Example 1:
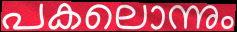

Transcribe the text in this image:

പകലൊന്നും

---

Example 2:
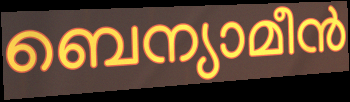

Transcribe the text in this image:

ബെന്യാമീൻ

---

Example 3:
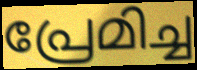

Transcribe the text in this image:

പ്രേമിച്ച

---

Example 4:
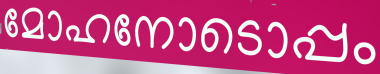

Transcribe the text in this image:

മോഹനോടൊപ്പം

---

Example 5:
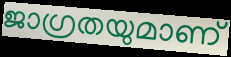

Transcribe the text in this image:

ജാഗ്രതയുമാണ്